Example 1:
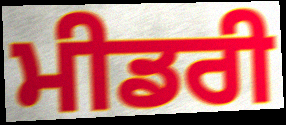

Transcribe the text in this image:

ਮੀਡਰੀ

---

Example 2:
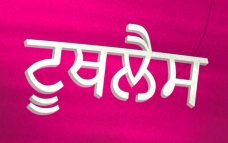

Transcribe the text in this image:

ਟੂਥਲੈਸ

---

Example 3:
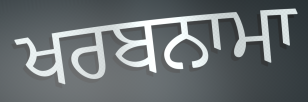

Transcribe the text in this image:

ਖਰਬਨਾਮਾ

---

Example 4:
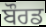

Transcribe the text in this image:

ਬੌਰਡ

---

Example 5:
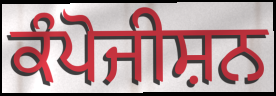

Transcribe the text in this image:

ਕੰਪੋਜੀਸ਼ਨ